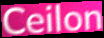
Ceilon